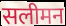
सलीमन